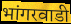
भांगरवाडी